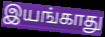
இயங்காது